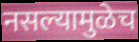
नसल्यामुळेच